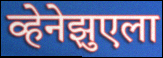
व्हेनेझुएला